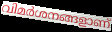
വിമർശനങ്ങളാണ്